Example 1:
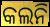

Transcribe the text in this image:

କଲନି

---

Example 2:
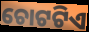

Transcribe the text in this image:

ଚୋଟଟିଏ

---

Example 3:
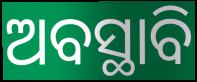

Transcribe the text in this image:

ଅବସ୍ଥାବି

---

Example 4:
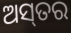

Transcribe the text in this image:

ଅସ୍‌ତର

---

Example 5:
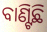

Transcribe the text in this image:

ବାଣ୍ଟିଛି